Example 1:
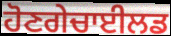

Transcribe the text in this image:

ਹੋਣਗੇਚਾਈਲਡ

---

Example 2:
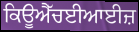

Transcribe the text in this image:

ਕਿਊਐੱਚਈਆਈਜ਼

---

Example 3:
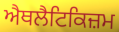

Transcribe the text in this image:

ਐਥਲੈਟਿਕਿਜ਼ਮ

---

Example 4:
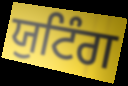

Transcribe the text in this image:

ਯੁਟਿੰਗ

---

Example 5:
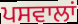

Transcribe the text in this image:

ਪਸਵਾਲਾਂ